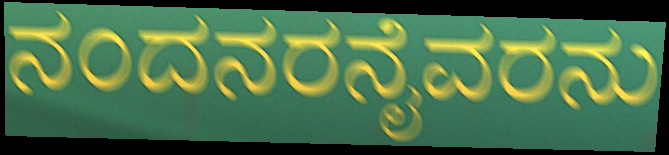
ನಂದನರನೈವರನು